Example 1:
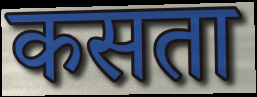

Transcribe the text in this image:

कसता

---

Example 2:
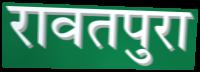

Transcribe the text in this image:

रावतपुरा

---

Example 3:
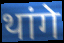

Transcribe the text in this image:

थांगे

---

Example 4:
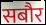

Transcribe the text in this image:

सबौर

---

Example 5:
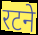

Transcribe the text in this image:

रटने